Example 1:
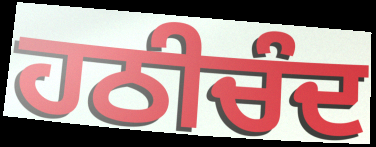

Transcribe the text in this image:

ਹਠੀਚੰਦ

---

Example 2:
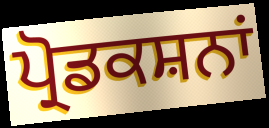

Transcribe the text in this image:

ਪ੍ਰੋਡਕਸ਼ਨਾਂ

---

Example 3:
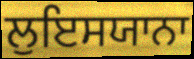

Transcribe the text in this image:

ਲੁਇਸਯਾਨਾ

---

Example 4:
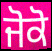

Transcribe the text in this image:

ਜੋਕੋ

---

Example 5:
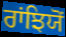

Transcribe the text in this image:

ਰਾਂਝਿਯੋਂ